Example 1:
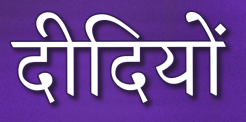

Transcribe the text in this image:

दीदियों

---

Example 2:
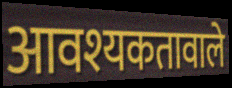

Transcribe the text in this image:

आवश्यकतावाले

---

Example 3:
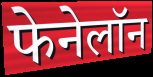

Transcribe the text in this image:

फेनेलॉन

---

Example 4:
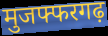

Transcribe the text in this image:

मुजफ्फरगढ़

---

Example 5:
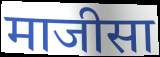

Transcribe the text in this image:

माजीसा